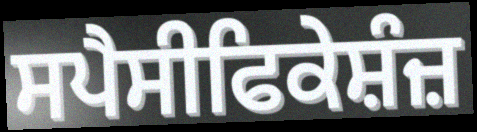
ਸਪੈਸੀਫਿਕੇਸ਼ੰਜ਼